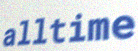
alltime